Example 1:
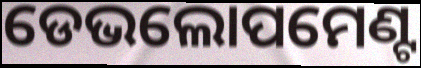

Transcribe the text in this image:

ଡେଭଲୋପମେଣ୍ଟ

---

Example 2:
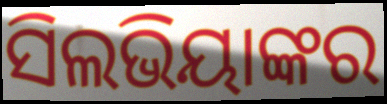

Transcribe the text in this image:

ସିଲଭିୟାଙ୍କର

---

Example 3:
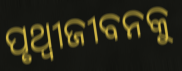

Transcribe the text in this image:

ପୃଥ୍ୱୀଜୀବନକୁ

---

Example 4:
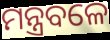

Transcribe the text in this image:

ମନ୍ତ୍ରବଳେ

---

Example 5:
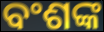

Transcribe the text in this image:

ବଂଶଙ୍କ